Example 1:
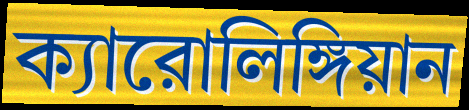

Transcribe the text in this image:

ক্যারোলিঙ্গিয়ান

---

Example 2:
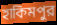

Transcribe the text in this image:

হাকিমপুর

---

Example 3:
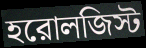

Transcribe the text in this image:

হরোলজিস্ট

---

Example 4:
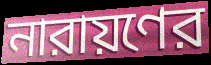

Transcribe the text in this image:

নারায়ণের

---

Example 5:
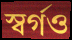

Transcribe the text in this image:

স্বর্গও